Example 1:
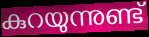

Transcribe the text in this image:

കുറയുന്നുണ്ട്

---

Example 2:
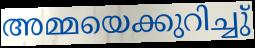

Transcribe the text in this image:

അമ്മയെക്കുറിച്ചു്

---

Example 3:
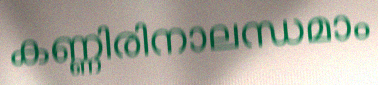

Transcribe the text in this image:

കണ്ണിരിനാലന്ധമാം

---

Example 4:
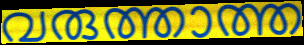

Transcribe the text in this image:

വരുത്താത്ത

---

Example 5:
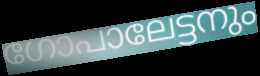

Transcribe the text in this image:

ഗോപാലേട്ടനും